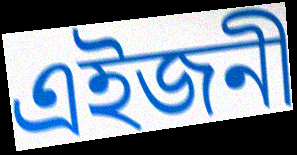
এইজনী